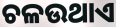
ଚଳଉଥାଏ